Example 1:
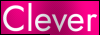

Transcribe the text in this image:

Clever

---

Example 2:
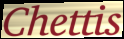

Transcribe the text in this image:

Chettis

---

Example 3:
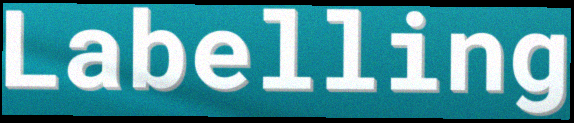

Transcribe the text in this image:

Labelling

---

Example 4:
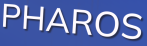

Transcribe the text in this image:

PHAROS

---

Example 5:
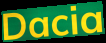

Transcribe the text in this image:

Dacia